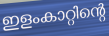
ഇളംകാറ്റിന്റെ